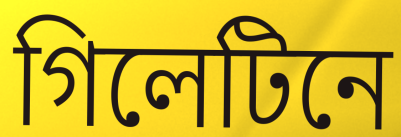
গিলেটিনে